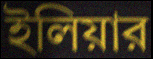
ইলিয়ার